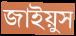
জাইয়ুস